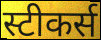
स्टीकर्स